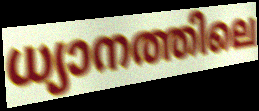
ധ്യാനത്തിലെ